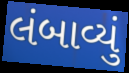
લંબાવ્યું